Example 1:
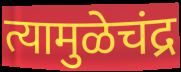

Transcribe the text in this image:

त्यामुळेचंद्र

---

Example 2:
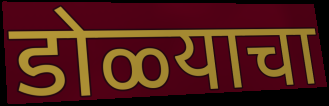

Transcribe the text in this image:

डोळ्याचा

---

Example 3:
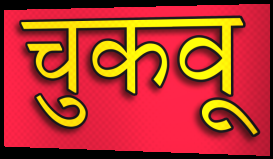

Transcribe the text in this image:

चुकवू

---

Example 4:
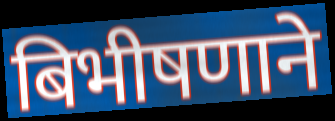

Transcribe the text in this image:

बिभीषणाने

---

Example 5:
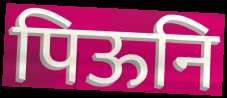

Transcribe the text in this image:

पिऊनि